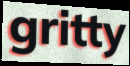
gritty